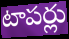
టాపర్లు